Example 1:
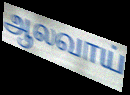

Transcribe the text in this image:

ஆலவாய்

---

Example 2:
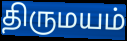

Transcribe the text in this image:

திருமயம்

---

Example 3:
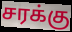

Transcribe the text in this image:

சரக்கு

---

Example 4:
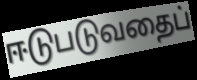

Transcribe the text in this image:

ஈடுபடுவதைப்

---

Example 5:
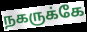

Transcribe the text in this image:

நகருக்கே